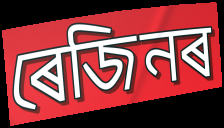
ৰেজিনৰ